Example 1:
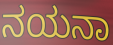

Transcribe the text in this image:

ನಯನಾ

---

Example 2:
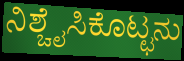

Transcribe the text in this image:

ನಿಶ್ಚೈಸಿಕೊಟ್ಟನು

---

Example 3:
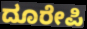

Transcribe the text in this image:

ದೂರೇಪಿ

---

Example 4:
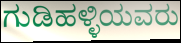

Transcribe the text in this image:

ಗುಡಿಹಳ್ಳಿಯವರು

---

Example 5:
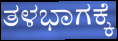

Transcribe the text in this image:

ತಳಭಾಗಕ್ಕೆ